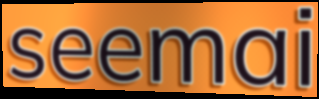
seemai